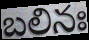
బలినః